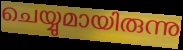
ചെയ്യുമായിരുന്നു